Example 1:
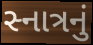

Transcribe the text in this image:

સ્નાત્રનું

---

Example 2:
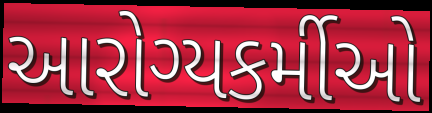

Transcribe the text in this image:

આરોગ્યકર્મીઓ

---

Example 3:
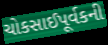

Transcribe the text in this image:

ચોકસાઈપૂર્વકની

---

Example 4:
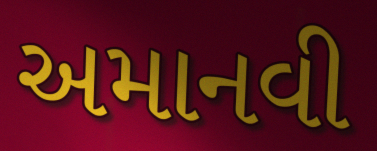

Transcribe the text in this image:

અમાનવી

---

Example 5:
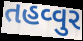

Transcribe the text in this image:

તહવ્વુર